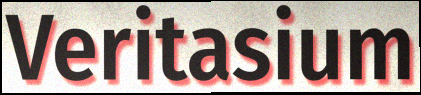
Veritasium